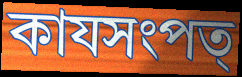
কাযসংপত্